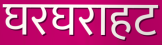
घरघराहट